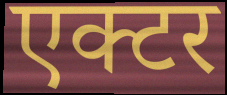
एक्टर